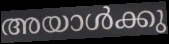
അയാൾക്കു